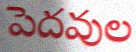
పెదవుల